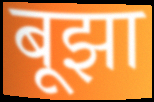
बूझा